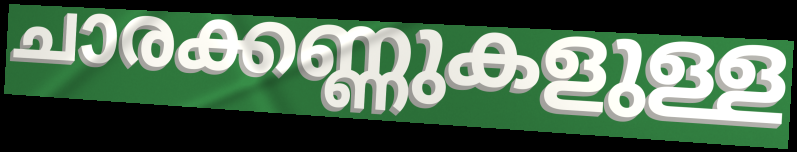
ചാരക്കണ്ണുകളുള്ള